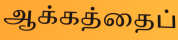
ஆக்கத்தைப்